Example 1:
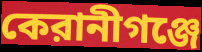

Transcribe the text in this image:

কেরানীগঞ্জে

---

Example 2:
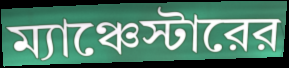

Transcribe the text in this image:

ম্যাঞ্চেস্টারের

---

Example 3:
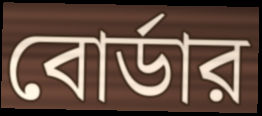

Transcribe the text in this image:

বোর্ডার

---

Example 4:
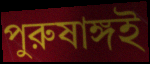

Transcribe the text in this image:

পুরুষাঙ্গই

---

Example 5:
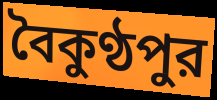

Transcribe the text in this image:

বৈকুণ্ঠপুর